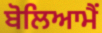
ਬੋਲਿਆਮੈਂ